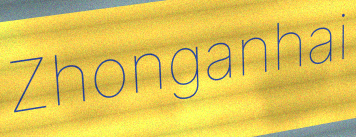
Zhonganhai